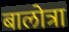
बालोत्रा